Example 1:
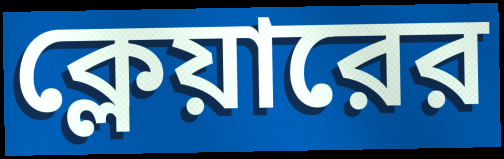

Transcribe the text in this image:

ক্লেয়ারের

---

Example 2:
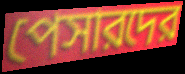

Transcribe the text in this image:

পেসারদের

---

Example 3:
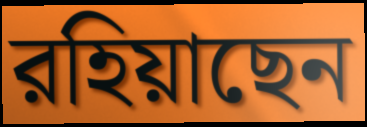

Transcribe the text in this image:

রহিয়াছেন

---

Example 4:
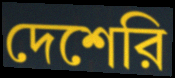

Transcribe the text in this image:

দেশেরি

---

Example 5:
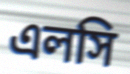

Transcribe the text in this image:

এলসি